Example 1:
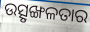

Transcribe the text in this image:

ଉତ୍ସୃଙ୍ଖଳତାର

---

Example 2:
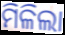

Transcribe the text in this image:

ମିଳିଲା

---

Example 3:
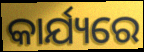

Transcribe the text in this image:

କାର୍ଯ୍ୟରେ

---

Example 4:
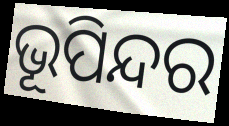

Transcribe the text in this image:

ଭୂପିନ୍ଦର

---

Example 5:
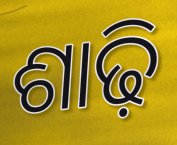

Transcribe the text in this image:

ଶାଢ଼ି